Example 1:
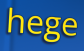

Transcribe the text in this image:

hege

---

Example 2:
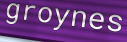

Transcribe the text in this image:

groynes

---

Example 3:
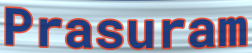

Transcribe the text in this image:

Prasuram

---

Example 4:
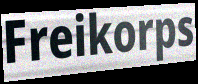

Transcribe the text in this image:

Freikorps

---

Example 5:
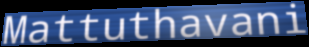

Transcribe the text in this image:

Mattuthavani